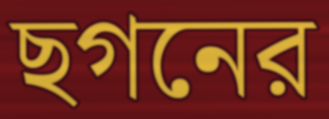
ছগনের